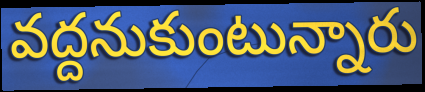
వద్దనుకుంటున్నారు